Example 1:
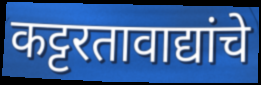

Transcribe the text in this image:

कट्टरतावाद्यांचे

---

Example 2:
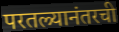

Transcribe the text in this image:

परतल्यानंतरची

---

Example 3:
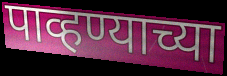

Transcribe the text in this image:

पाव्हण्याच्या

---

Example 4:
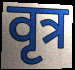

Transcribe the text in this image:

वृत्र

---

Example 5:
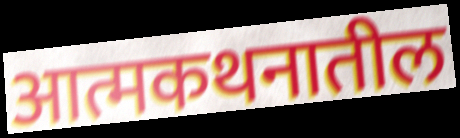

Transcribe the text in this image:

आत्मकथनातील